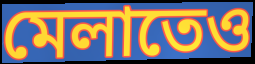
মেলাতেও